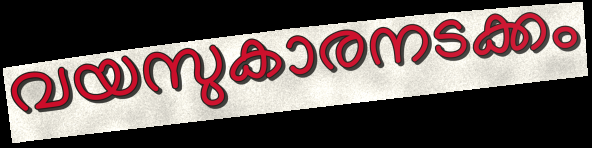
വയസുകാരനടക്കം